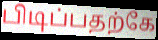
பிடிப்பதற்கே